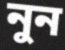
নুন